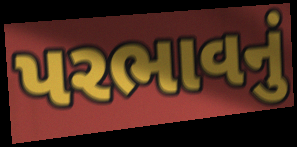
પરભાવનું